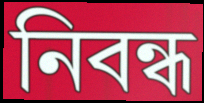
নিবন্ধ